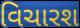
વિચારશ